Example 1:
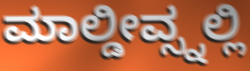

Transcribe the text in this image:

ಮಾಲ್ಡೀವ್ಸ್ನಲ್ಲಿ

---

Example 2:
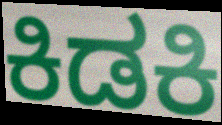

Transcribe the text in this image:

ಕಿಡಕಿ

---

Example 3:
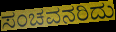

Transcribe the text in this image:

ಸಂಚವನರಿದು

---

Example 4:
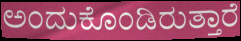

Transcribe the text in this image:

ಅಂದುಕೊಂಡಿರುತ್ತಾರೆ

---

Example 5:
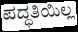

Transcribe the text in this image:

ಪದ್ಧತಿಯಿಲ್ಲ